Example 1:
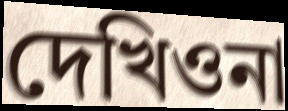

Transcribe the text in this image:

দেখিওনা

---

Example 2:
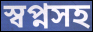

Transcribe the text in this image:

স্বপ্নসহ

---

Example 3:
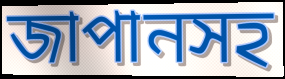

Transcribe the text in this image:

জাপানসহ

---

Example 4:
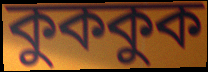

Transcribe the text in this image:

কুককুক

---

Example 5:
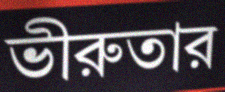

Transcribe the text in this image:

ভীরুতার